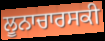
ਲੂਨਾਚਾਰਸਕੀ